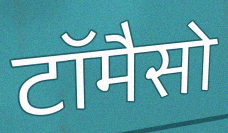
टॉमैसो